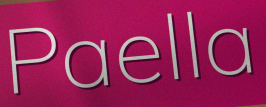
Paella